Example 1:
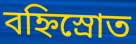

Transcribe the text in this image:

বহ্নিস্রোত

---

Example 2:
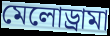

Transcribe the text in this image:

মেলোড্রামা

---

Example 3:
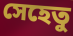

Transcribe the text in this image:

সেহেতু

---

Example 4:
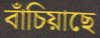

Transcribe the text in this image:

বাঁচিয়াছে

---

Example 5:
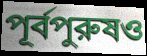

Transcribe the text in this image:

পূর্বপুরুষও